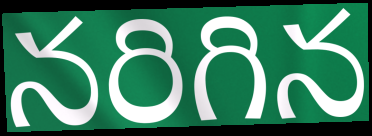
నరిగిన